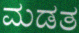
ಮಡತ